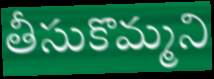
తీసుకొమ్మని